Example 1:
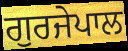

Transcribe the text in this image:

ਗੁਰਜੇਪਾਲ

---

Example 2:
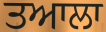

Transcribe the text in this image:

ਤਆਲਾ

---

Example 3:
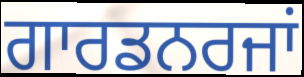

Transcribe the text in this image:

ਗਾਰਡਨਰਜਾਂ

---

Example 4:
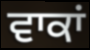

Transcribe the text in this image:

ਵਾਕਾਂ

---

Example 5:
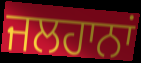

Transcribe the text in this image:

ਜਲਹਾਨਾਂ